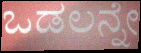
ಒಡಲನ್ನೇ